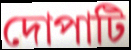
দোপাটি